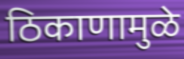
ठिकाणामुळे